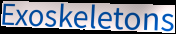
Exoskeletons